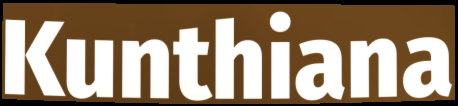
Kunthiana